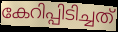
കേറിപ്പിടിച്ചത്